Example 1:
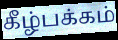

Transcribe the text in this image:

கீழ்பக்கம்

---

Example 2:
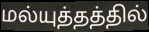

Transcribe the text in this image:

மல்யுத்தத்தில்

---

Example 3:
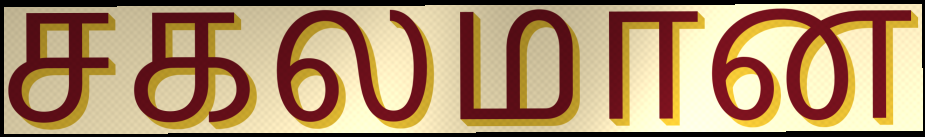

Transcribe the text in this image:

சகலமான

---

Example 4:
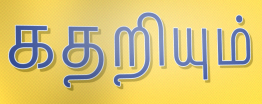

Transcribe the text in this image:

கதறியும்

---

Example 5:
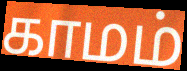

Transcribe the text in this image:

காமம்